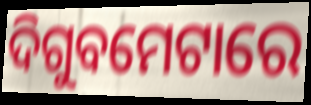
ଦିଗୁବମେଟାରେ